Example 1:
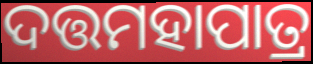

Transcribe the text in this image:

ଦତ୍ତମହାପାତ୍ର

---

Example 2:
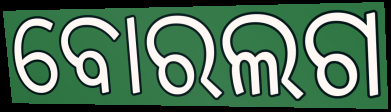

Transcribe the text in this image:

ବୋରଲଗ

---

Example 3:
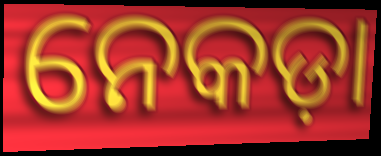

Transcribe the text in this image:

ନେକଡ଼ା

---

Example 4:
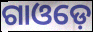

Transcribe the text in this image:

ଗାଓଡ଼େ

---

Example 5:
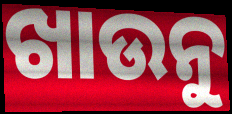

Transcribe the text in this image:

ଖାଉନୁ